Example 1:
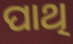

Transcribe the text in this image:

ପାଥି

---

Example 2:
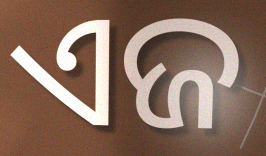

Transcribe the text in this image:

ଏଜ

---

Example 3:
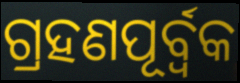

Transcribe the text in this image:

ଗ୍ରହଣପୂର୍ବ୍ବକ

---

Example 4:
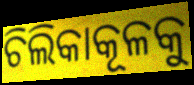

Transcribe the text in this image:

ଚିଲିକାକୂଳକୁ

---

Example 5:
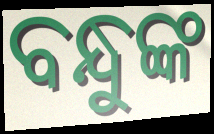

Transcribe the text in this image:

ବନ୍ଧୁଙ୍କ